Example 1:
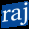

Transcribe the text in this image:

raj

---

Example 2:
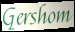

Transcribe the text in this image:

Gershom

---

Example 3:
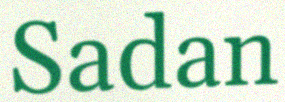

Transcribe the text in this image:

Sadan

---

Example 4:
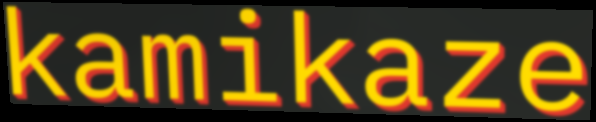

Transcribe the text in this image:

kamikaze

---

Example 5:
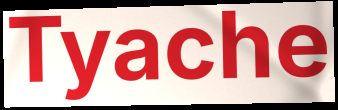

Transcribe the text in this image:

Tyache